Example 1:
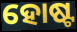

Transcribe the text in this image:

ହୋଷ୍ଟ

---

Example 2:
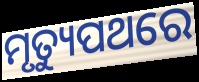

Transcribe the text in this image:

ମୃତ୍ୟୁପଥରେ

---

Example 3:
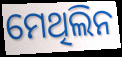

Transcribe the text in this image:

ମେଥିଲିନ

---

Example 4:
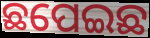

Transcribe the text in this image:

ଛପେଇଛ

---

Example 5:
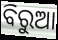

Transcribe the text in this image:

ବିରୁଆ